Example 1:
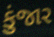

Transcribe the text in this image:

કુંજાર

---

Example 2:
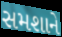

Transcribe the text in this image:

સમશાને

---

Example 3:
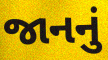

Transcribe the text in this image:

જાનનું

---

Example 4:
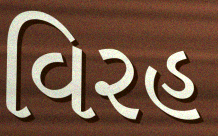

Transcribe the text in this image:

વિરહ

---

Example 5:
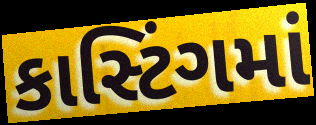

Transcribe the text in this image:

કાસ્ટિંગમાં